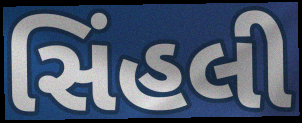
સિંહલી